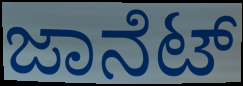
ಜಾನೆಟ್